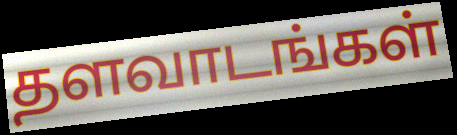
தளவாடங்கள்